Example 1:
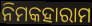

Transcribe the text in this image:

ନିମକହାରାମ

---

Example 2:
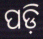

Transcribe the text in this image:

ପଡ଼ି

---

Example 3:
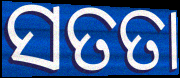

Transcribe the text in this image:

ସତତା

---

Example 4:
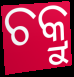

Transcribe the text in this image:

ଚକ୍ରୁ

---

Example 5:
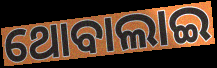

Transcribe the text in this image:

ଥୋବାଲାଇ